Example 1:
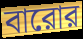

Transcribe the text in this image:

বারোর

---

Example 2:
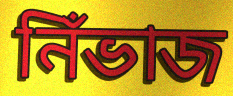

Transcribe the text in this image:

নিঁভাজ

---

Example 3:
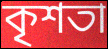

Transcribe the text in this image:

কৃশতা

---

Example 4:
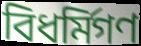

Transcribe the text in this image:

বিধর্মিগণ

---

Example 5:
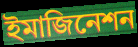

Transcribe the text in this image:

ইমাজিনেশন